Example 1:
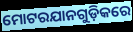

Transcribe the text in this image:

ମୋଟରଯାନଗୁଡ଼ିକରେ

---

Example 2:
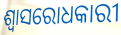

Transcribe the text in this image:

ଶ୍ୱାସରୋଧକାରୀ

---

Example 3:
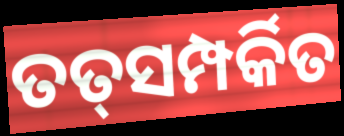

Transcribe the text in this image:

ତତ୍‌ସମ୍ପର୍କିତ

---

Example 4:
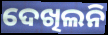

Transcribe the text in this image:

ଦେଖିଲନି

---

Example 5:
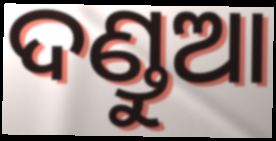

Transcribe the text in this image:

ଦଣ୍ଡୁଆ